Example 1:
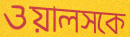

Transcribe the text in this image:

ওয়ালসকে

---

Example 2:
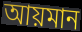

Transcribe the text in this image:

আয়মান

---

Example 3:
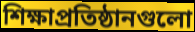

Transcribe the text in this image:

শিক্ষাপ্রতিষ্ঠানগুলো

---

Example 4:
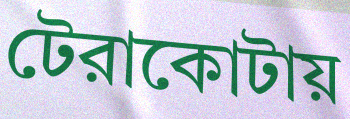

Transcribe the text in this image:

টেরাকোটায়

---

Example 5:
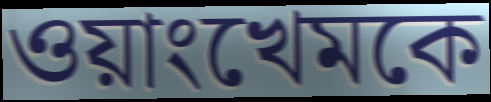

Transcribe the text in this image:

ওয়াংখেমকে